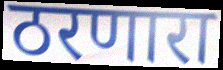
ठरणारा